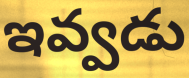
ఇవ్వడు